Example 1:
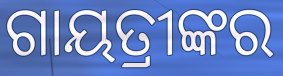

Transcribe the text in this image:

ଗାୟତ୍ରୀଙ୍କର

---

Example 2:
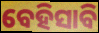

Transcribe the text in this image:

ବେହିସାବି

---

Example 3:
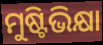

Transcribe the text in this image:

ମୁଷ୍ଟିଭିକ୍ଷା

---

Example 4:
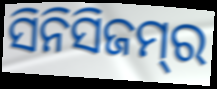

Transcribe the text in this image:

ସିନିସିଜମ୍‌ର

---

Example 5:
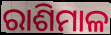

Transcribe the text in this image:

ରାଶିମାଳ